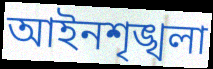
আইনশৃঙ্খলা